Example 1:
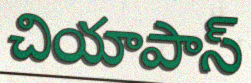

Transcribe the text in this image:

చియాపాస్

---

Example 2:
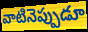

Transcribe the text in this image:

వాటినెప్పుడూ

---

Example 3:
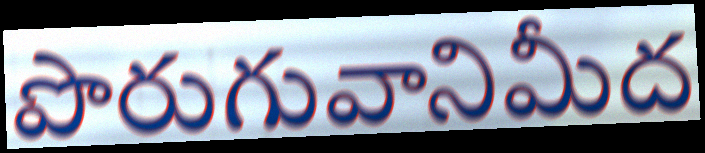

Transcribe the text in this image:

పొరుగువానిమీద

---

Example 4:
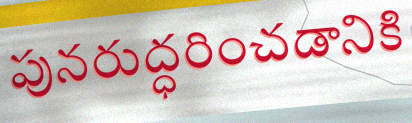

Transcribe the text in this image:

పునరుద్ధరించడానికి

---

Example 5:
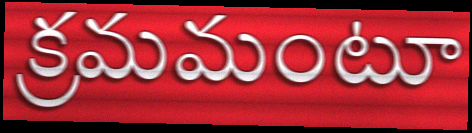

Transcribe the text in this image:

క్రమమంటూ